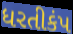
ધરતીકંપ